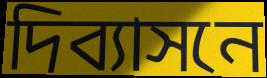
দিব্যাসনে